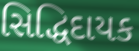
સિદ્ધિદાયક